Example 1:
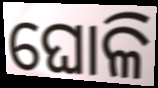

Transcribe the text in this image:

ଘୋଳି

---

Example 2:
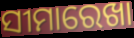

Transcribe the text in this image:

ସୀମାରେଖା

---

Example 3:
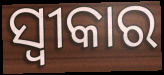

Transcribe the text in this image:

ସ୍ୱୀକାର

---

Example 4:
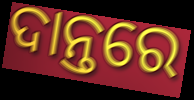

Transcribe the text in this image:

ଦାନ୍ତରେ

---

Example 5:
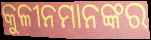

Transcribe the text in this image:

କୁଳୀନମାନଙ୍କର